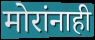
मोरांनाही